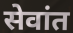
सेवांत